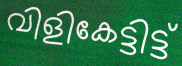
വിളികേട്ടിട്ട്